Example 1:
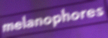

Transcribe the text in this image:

melanophores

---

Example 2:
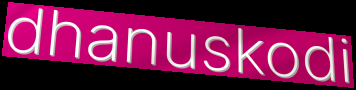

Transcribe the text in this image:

dhanuskodi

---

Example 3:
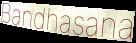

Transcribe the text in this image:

Bandhasana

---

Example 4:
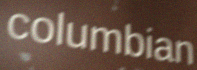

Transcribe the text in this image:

columbian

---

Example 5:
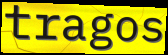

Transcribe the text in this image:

tragos